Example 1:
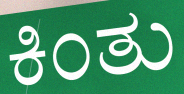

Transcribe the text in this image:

ಕಿಂತು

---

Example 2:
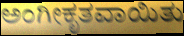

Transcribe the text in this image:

ಅಂಗೀಕೃತವಾಯಿತು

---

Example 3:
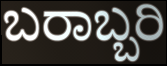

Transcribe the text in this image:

ಬರಾಬ್ಬರಿ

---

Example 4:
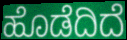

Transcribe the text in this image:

ಹೊಡೆದಿದೆ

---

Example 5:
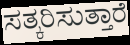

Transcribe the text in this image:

ಸತ್ಕರಿಸುತ್ತಾರೆ